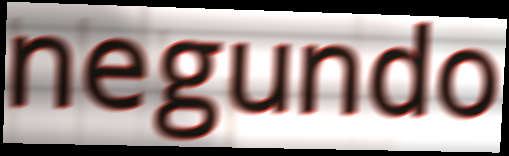
negundo